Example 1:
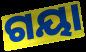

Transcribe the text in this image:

ଗୟା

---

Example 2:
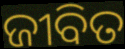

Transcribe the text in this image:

ଜୀବିତ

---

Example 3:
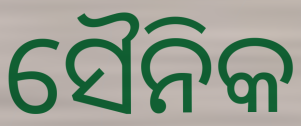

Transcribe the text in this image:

ସୈନିକ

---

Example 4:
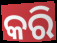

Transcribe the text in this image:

କରି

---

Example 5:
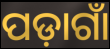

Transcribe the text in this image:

ପଡ଼ାଗାଁ